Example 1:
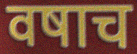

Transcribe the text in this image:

वषाच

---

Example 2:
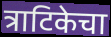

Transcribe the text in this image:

त्राटिकेचा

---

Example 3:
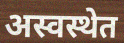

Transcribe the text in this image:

अस्वस्थेत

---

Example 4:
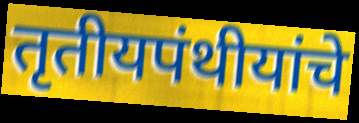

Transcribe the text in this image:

तृतीयपंथीयांचे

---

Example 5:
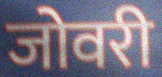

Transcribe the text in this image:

जोवरी